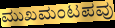
ಮುಖಮಂಟಪವು